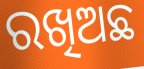
ରଖିଅଛ